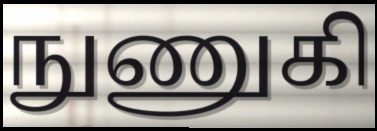
நுணுகி